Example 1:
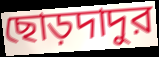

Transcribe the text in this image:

ছোড়দাদুর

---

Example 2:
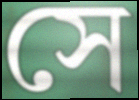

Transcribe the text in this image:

সে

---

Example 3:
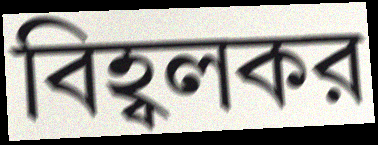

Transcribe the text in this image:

বিহ্বলকর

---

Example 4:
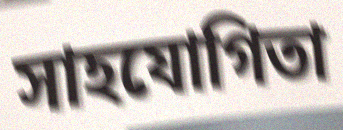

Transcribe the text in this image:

সাহযোগিতা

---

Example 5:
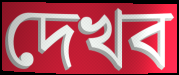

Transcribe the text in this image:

দেখব